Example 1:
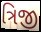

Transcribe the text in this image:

ત્રિજી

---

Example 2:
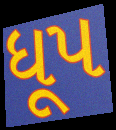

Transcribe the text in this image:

ધૂપ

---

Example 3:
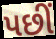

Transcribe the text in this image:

પછીં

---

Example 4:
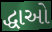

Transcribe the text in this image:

દ્ધાઓ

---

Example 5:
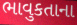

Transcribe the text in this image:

ભાવુકતાના